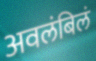
अवलंबिलं